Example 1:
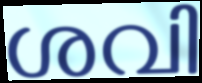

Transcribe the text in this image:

ശവി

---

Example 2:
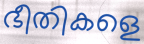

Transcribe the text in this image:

ഭീതികളെ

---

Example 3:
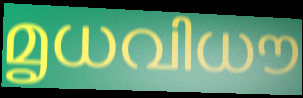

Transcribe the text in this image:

മൃധവിധൗ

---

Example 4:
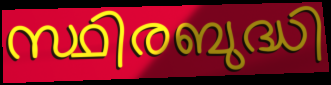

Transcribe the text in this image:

സ്ഥിരബുദ്ധി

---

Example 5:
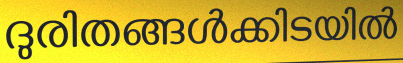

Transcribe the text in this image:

ദുരിതങ്ങൾക്കിടയിൽ